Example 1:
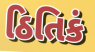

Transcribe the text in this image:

ઠિતિકં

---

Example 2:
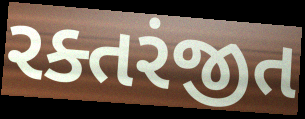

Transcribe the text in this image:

રક્તરંજીત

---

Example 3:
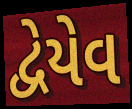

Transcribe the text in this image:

દ્વેયેવ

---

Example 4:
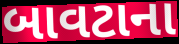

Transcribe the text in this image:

બાવટાના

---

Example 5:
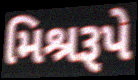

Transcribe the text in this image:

મિશ્રરૂપે